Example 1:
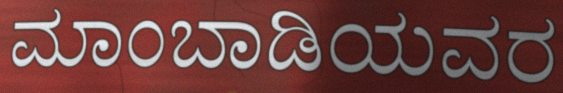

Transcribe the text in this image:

ಮಾಂಬಾಡಿಯವರ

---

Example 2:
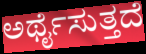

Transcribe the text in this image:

ಅರ್ಥೈಸುತ್ತದೆ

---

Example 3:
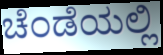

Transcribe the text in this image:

ಚೆಂಡೆಯಲ್ಲಿ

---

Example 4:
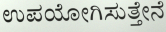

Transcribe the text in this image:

ಉಪಯೋಗಿಸುತ್ತೇನೆ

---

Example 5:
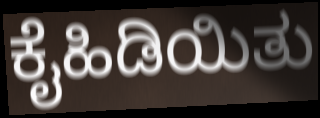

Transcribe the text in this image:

ಕೈಹಿಡಿಯಿತು